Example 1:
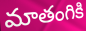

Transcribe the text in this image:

మాతంగికి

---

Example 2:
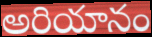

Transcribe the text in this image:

అరియానం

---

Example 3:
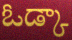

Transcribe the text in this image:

ఓడ్కా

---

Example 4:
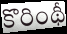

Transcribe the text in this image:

కొరింథీ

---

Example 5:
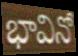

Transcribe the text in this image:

భావినో